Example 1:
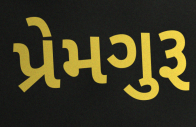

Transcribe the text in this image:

પ્રેમગુરૂ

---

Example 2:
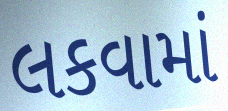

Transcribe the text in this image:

લકવામાં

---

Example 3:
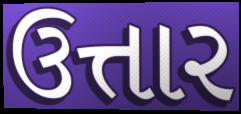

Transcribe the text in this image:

ઉત્તાર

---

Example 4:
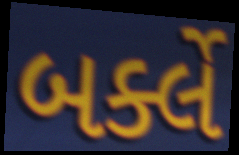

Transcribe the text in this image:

બર્ક્લે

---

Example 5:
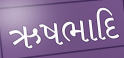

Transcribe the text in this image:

ઋષભાદિ